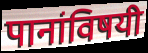
पानांविषयी